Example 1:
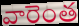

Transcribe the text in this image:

వారెంత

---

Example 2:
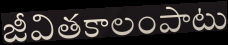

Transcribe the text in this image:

జీవితకాలంపాటు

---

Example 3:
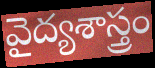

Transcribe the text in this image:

వైద్యశాస్త్రం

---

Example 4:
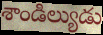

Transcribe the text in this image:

శాండిల్యుడు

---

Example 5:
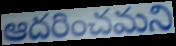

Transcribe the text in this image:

ఆదరించమని